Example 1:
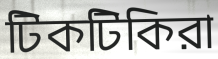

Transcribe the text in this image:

টিকটিকিরা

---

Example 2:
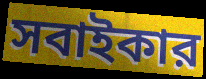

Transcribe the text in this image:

সবাইকার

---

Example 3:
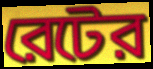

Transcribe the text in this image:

রেটের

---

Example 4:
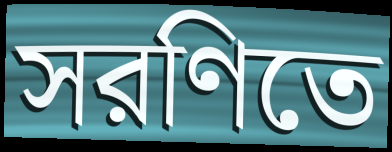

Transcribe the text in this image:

সরণিতে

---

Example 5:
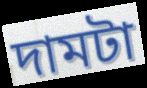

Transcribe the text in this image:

দামটা